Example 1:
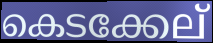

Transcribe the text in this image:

കെടക്കേല്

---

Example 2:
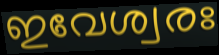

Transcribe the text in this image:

ഇവേശ്വരഃ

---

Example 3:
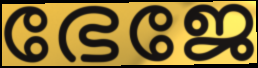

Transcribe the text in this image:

ഭേജേ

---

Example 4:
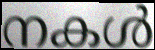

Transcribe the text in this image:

നകൾ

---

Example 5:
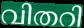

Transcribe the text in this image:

വിതറി